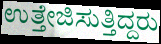
ಉತ್ತೇಜಿಸುತ್ತಿದ್ದರು